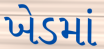
ખેડમાં